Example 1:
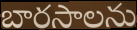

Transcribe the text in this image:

బారసాలను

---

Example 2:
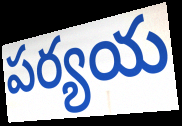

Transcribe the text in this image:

పర్యయ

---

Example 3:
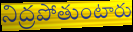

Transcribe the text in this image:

నిద్రపోతుంటారు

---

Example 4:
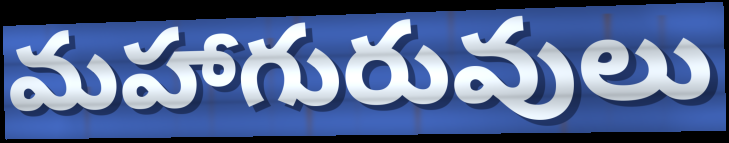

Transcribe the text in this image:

మహాగురువులు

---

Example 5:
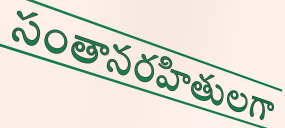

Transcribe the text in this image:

సంతానరహితులగా